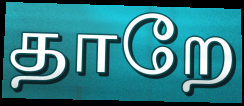
தாறே